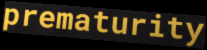
prematurity